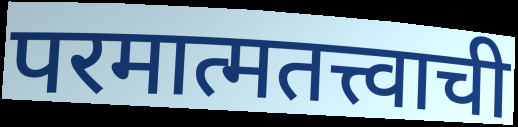
परमात्मतत्त्वाची